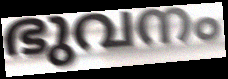
ഭുവനം